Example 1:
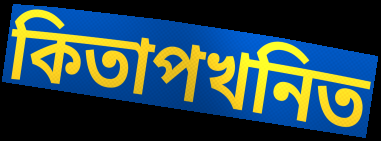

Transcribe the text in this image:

কিতাপখনিত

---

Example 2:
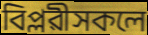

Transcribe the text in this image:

বিপ্লৱীসকলে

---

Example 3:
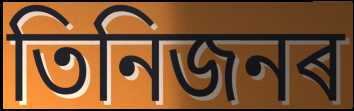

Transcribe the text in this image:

তিনিজনৰ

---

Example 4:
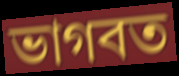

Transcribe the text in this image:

ভাগবত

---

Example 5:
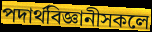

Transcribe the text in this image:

পদাৰ্থবিজ্ঞানীসকলে